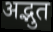
अद्भुत